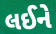
લઈને